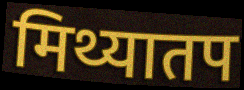
मिथ्यातप